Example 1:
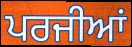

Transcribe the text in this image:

ਪਰਜੀਆਂ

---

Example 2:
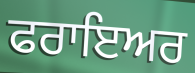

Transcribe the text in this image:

ਫਰਾਇਅਰ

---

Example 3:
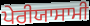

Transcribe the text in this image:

ਪੇਰੀਯਾਸਾਮੀ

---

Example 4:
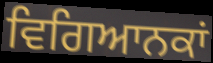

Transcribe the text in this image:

ਵਿਗਿਆਨਕਾਂ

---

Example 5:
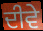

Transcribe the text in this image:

ਦੀਵੇ